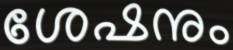
ശേഷനും